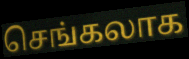
செங்கலாக